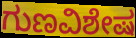
ಗುಣವಿಶೇಷ